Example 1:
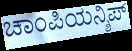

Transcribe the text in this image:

ಚಾಂಪಿಯನ್ಶಿಪ್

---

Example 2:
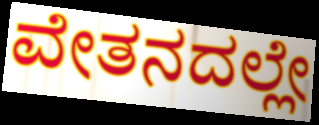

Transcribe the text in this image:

ವೇತನದಲ್ಲೇ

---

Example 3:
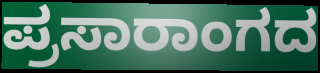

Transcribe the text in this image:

ಪ್ರಸಾರಾಂಗದ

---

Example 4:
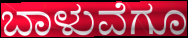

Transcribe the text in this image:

ಬಾಳುವೆಗೂ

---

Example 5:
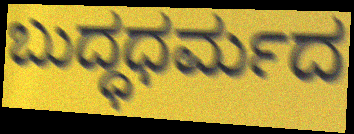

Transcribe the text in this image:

ಬುದ್ಧಧರ್ಮದ